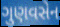
ગુણવસેન